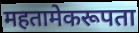
महतामेकरूपता